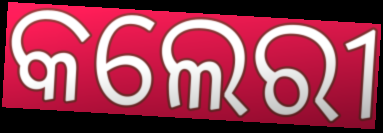
କଲେରୀ